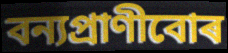
বন্যপ্ৰাণীবোৰ